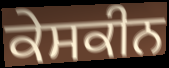
ਕੇਸਕੀਨ